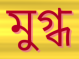
মুগ্ধ